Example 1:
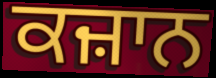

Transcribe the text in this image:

ਕਜ਼ਾਨ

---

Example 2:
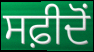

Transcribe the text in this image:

ਸਫ਼ੀਦੋਂ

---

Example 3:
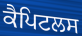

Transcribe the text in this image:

ਕੈਪਿਟਲਸ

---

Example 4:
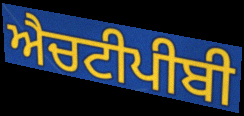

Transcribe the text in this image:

ਐਚਟੀਪੀਬੀ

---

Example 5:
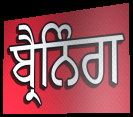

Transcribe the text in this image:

ਬ੍ਰੈਨਿੰਗ